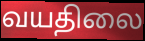
வயதிலை